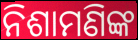
ନିଶାମଣିଙ୍କ